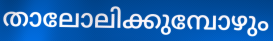
താലോലിക്കുമ്പോഴും